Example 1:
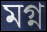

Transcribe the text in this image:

মগ্ন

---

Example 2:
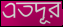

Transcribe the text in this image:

এতদূর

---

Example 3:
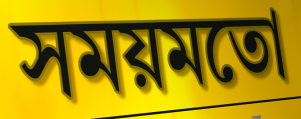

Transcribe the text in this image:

সময়মতো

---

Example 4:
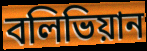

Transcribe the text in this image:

বলিভিয়ান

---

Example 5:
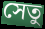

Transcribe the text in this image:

সেতু